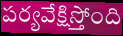
పర్యవేక్షిస్తోంది